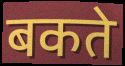
बकते